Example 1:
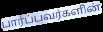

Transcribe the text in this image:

பார்ப்பவர்களின்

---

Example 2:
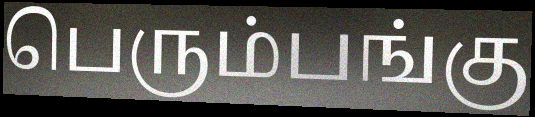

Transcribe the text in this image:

பெரும்பங்கு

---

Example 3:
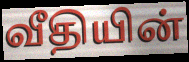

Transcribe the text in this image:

வீதியின்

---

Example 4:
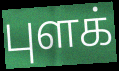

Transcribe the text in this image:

புளக்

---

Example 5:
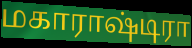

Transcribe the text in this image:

மகாராஷ்டிரா